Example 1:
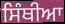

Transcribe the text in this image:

ਸਿੰਥੀਆ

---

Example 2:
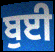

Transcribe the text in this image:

ਬੁਈ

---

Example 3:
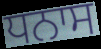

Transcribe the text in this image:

ਧਨਾਸ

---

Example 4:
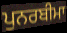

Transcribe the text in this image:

ਪੁਨਰਬੀਮਾ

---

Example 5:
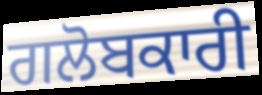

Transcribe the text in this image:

ਗਲੋਬਕਾਰੀ